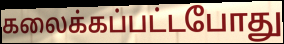
கலைக்கப்பட்டபோது